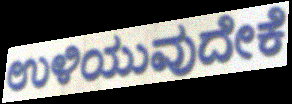
ಉಳಿಯುವುದೇಕೆ